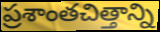
ప్రశాంతచిత్తాన్ని